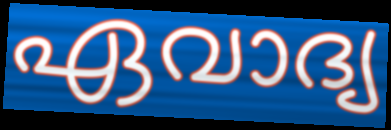
ഏവാദ്യ